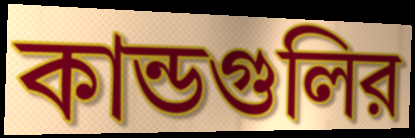
কান্ডগুলির